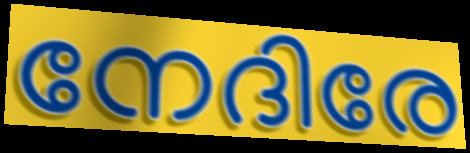
നേദിരേ